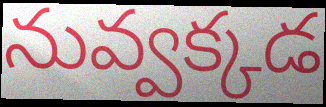
నువ్వక్కడ